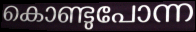
കൊണ്ടുപോന്ന